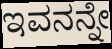
ಇವನನ್ನೇ